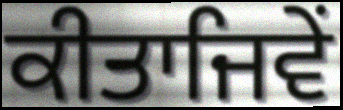
ਕੀਤਾਜਿਵੇਂ